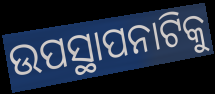
ଉପସ୍ଥାପନାଟିକୁ